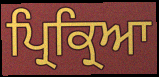
ਪ੍ਰਿਕ੍ਰਿਆ